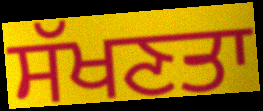
ਸੱਖਣਤਾ